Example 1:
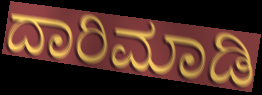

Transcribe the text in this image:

ದಾರಿಮಾಡಿ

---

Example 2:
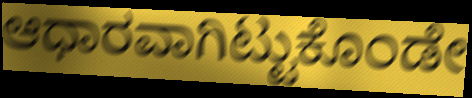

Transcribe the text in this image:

ಆಧಾರವಾಗಿಟ್ಟುಕೊಂಡೇ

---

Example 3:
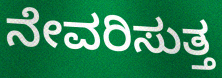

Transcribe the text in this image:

ನೇವರಿಸುತ್ತ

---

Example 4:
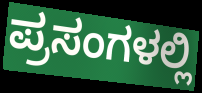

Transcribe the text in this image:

ಪ್ರಸಂಗಳಲ್ಲಿ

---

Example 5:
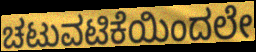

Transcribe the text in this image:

ಚಟುವಟಿಕೆಯಿಂದಲೇ